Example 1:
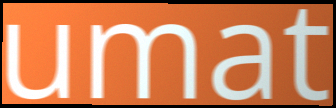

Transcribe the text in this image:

umat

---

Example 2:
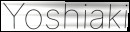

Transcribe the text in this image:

Yoshiaki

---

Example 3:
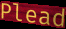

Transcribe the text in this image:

Plead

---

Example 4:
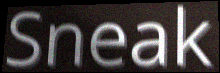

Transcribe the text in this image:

Sneak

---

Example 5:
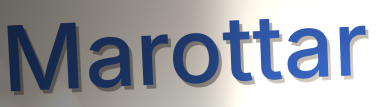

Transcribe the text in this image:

Marottar